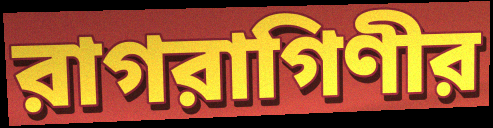
রাগরাগিণীর